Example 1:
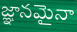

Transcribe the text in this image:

జ్ఞానమైనా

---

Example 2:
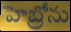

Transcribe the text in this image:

హెబ్రోను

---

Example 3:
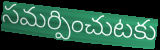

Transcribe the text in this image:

సమర్పించుటకు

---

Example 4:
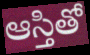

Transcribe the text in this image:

ఆస్తితో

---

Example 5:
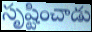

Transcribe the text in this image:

సృష్టించాడు